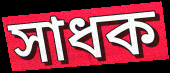
সাধক